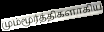
மும்மூர்த்திகளாகிய